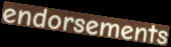
endorsements